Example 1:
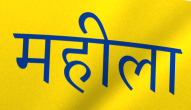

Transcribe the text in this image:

महीला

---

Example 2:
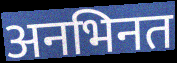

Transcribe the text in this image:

अनभिनत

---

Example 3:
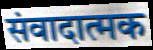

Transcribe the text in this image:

संवादात्मक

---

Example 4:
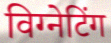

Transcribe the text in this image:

विग्नेटिंग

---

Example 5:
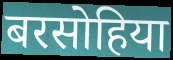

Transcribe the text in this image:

बरसोहिया